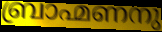
ബ്രാഹ്മണനു